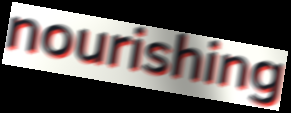
nourishing